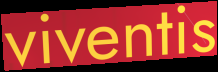
viventis